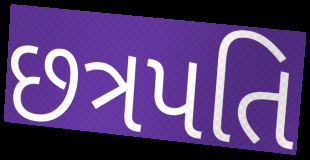
છત્રપતિ